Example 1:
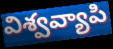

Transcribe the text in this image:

విశ్వవ్యాపి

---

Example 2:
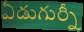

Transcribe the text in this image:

ఏడుగుర్నీ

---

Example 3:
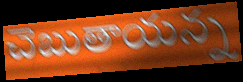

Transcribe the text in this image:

చెబుతాయన్న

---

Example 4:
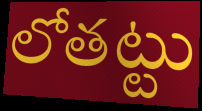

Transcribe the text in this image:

లోతట్టు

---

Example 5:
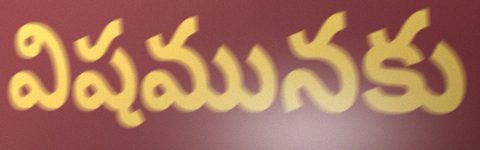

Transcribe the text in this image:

విషమునకు